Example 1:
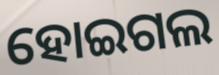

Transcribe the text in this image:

ହୋଇଗଲ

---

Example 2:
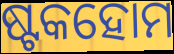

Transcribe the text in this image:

ଷ୍ଟକହୋମ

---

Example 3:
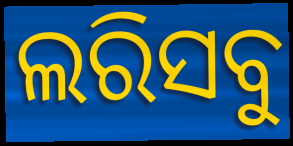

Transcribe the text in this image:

ଲରିସବୁ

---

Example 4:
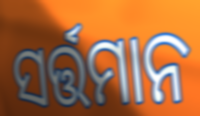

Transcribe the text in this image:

ସର୍ତ୍ତମାନ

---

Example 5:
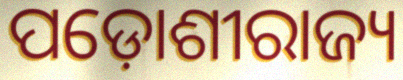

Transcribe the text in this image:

ପଡ଼ୋଶୀରାଜ୍ୟ